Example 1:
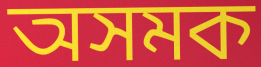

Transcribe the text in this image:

অসমক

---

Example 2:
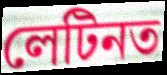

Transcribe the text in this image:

লেটিনত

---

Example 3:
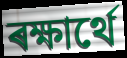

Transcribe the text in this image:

ৰক্ষাৰ্থে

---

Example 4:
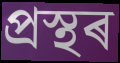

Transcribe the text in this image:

প্ৰস্থৰ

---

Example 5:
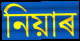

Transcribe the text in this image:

নিয়াৰ